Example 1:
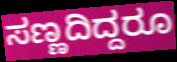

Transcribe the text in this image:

ಸಣ್ಣದಿದ್ದರೂ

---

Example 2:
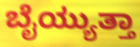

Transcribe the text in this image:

ಬೈಯ್ಯುತ್ತಾ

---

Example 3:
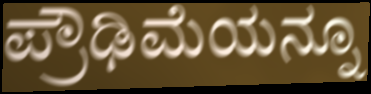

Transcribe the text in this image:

ಪ್ರೌಢಿಮೆಯನ್ನೂ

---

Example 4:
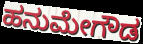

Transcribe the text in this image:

ಹನುಮೇಗೌಡ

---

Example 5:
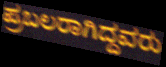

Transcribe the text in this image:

ಪ್ರಬಲರಾಗಿದ್ದವರು